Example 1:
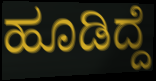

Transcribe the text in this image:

ಹೂಡಿದ್ದೆ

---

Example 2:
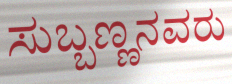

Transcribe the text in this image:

ಸುಬ್ಬಣ್ಣನವರು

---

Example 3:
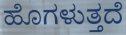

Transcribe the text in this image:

ಹೊಗಳುತ್ತದೆ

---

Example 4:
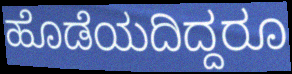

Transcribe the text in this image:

ಹೊಡೆಯದಿದ್ದರೂ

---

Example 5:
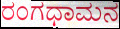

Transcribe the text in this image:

ರಂಗಧಾಮನ